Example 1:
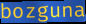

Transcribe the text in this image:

bozguna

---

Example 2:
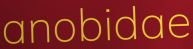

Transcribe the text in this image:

anobidae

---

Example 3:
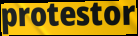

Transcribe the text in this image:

protestor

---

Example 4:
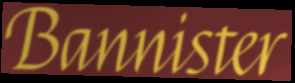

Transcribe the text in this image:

Bannister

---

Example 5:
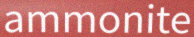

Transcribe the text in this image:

ammonite